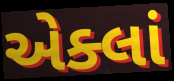
એક્લાં